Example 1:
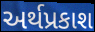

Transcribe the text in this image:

અર્થપ્રકાશ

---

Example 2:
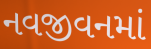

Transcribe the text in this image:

નવજીવનમાં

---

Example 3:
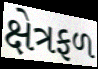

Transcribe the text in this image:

ક્ષેત્રફળ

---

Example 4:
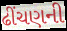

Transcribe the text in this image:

ઢીંચણની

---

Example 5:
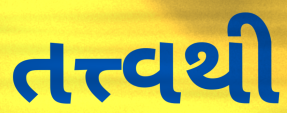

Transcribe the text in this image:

તત્ત્વથી